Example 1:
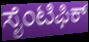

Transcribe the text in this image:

ಸೈಂಟಿಫಿಕ್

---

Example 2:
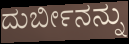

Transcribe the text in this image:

ದುರ್ಬೀನನ್ನು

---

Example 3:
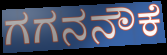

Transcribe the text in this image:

ಗಗನನೌಕೆ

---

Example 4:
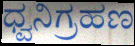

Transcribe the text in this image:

ಧ್ವನಿಗ್ರಹಣ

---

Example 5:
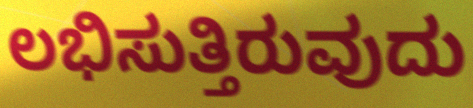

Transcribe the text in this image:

ಲಭಿಸುತ್ತಿರುವುದು